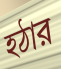
হঠার